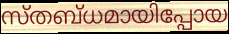
സ്തബ്ധമായിപ്പോയ